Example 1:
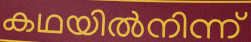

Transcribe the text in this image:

കഥയിൽനിന്ന്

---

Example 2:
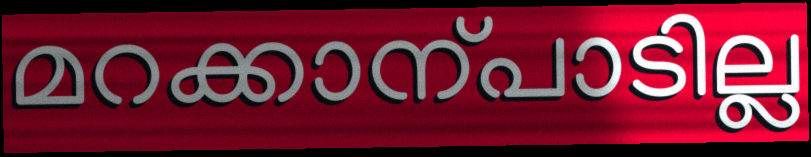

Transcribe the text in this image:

മറക്കാന്പാടില്ല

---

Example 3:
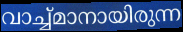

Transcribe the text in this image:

വാച്ച്മാനായിരുന്ന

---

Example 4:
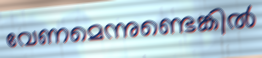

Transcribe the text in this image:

വേണമെന്നുണ്ടെങ്കിൽ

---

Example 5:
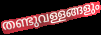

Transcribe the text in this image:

തണ്ടുവള്ളങ്ങളും